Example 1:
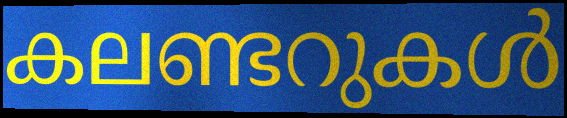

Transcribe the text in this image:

കലണ്ടറുകൾ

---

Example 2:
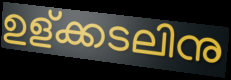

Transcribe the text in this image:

ഉള്ക്കടലിനു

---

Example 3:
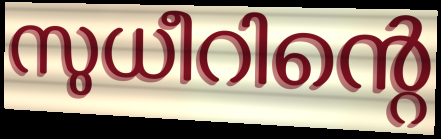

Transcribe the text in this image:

സുധീറിന്റെ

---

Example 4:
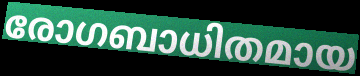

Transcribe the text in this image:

രോഗബാധിതമായ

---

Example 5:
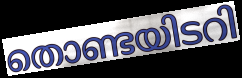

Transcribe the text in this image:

തൊണ്ടയിടറി